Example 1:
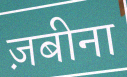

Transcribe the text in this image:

ज़बीना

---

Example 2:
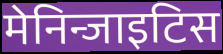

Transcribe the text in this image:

मेनिन्जाइटिस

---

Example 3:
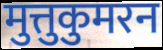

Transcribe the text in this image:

मुत्तुकुमरन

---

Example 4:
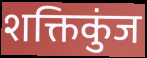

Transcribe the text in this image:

शक्तिकुंज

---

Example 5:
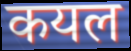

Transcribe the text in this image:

कयल